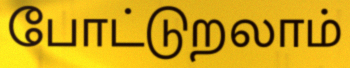
போட்டுறலாம்